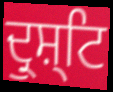
ਦ੍ਰੁਸ਼੍ਟਿ